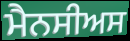
ਮੈਨਸੀਅਸ